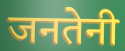
जनतेनी